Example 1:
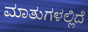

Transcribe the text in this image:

ಮಾತುಗಳಲ್ಲಿದೆ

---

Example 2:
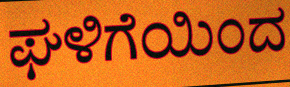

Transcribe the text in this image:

ಘಳಿಗೆಯಿಂದ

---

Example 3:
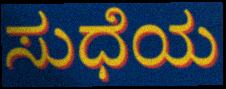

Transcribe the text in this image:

ಸುಧೆಯ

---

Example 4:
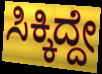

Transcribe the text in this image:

ಸಿಕ್ಕಿದ್ದೇ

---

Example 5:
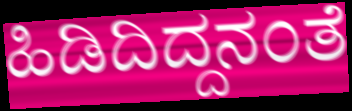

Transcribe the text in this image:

ಹಿಡಿದಿದ್ದನಂತೆ